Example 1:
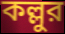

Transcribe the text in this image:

কল্লুর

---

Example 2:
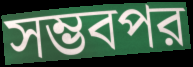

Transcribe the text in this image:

সম্ভবপর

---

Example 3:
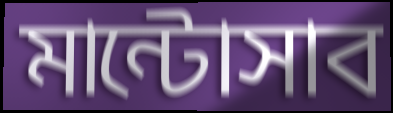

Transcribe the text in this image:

মান্টোসাব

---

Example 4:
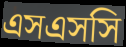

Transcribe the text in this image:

এসএসসি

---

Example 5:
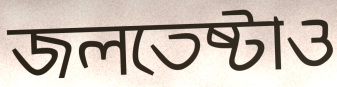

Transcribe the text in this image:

জলতেষ্টাও